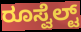
ರೂಸ್ವೆಲ್ಟ್